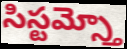
సిస్టమ్స్తో